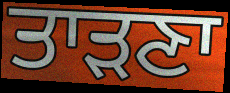
ਤਾੜਣਾ